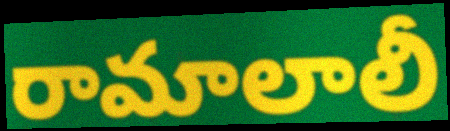
రామాలాలీ